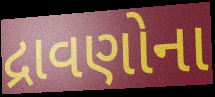
દ્રાવણોના